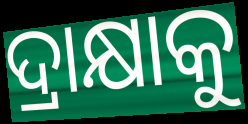
ଦ୍ରାକ୍ଷାକୁ